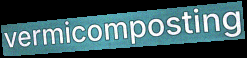
vermicomposting